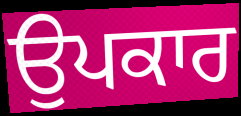
ਉਪਕਾਰ